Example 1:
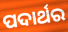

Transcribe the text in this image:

ପଦାର୍ଥର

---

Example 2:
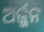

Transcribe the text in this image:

ଅର୍ଜ୍ଜନ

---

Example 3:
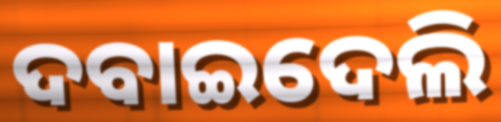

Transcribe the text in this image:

ଦବାଇଦେଲି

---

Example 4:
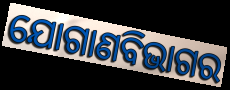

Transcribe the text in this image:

ଯୋଗାଣବିଭାଗର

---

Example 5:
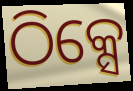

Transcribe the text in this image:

ଠିକ୍ସେ